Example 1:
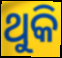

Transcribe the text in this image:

ଥୁକି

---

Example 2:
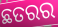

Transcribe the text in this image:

ଛତରର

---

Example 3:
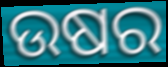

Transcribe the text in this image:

ଉଷର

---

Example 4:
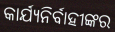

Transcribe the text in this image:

କାର୍ଯ୍ୟନିର୍ବାହୀଙ୍କର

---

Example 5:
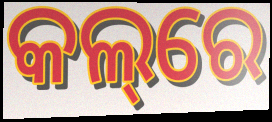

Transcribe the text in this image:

କଲ୍‌ରେ